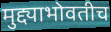
मुद्द्याभोवतीच